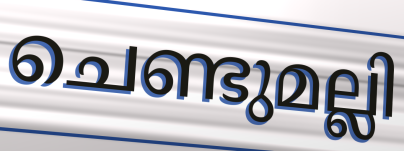
ചെണ്ടുമല്ലി